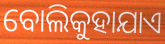
ବୋଲିକୁହାଯାଏ